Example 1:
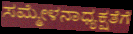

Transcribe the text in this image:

ಸಮ್ಮೇಳನಾಧ್ಯಕ್ಷತೆಗೆ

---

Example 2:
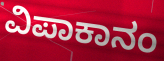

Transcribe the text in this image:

ವಿಪಾಕಾನಂ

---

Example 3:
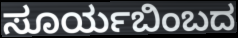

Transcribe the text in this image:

ಸೂರ್ಯಬಿಂಬದ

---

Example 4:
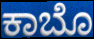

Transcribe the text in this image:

ಕಾಬೊ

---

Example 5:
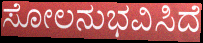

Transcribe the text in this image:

ಸೋಲನುಭವಿಸಿದೆ